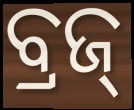
ବ୍ରଜ୍